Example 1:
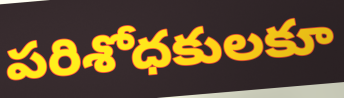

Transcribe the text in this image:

పరిశోధకులకూ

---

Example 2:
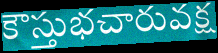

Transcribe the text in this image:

కౌస్తుభచారువక్ష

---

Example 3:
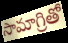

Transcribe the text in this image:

సామాగ్రితో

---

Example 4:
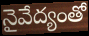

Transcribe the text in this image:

నైవేద్యంతో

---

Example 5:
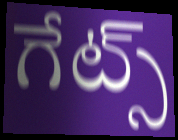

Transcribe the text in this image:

గేట్స్